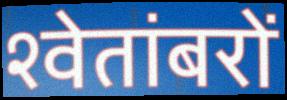
श्वेतांबरों